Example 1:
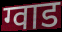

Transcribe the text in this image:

ग्वाड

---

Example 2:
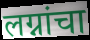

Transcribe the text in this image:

लग्नांचा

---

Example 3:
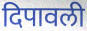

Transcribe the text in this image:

दिपावली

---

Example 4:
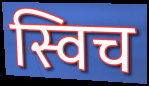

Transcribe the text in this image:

स्विच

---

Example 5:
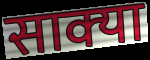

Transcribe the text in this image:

साक्या